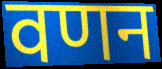
वणन